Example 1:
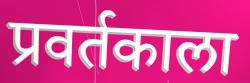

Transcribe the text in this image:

प्रवर्तकाला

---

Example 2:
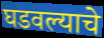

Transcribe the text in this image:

घडवल्याचे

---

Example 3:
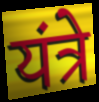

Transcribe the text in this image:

यंत्रे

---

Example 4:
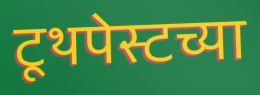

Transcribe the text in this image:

टूथपेस्टच्या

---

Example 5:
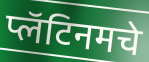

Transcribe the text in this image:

प्लॅटिनमचे